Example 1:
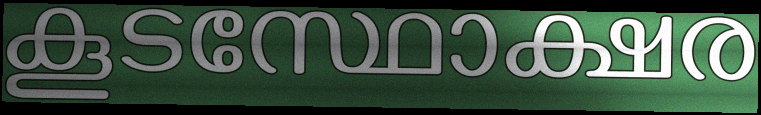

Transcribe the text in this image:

കൂടസ്ഥോക്ഷര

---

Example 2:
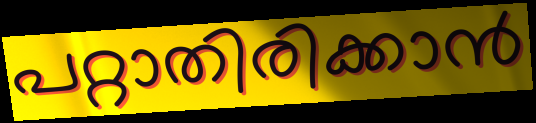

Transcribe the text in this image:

പറ്റാതിരിക്കാൻ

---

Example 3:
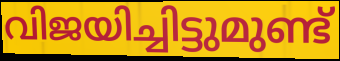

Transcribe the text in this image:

വിജയിച്ചിട്ടുമുണ്ട്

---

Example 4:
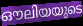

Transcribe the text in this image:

ഔലിയയുടെ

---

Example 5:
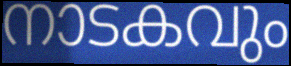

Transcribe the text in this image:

നാടകവും